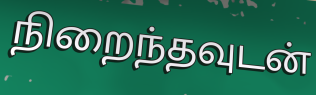
நிறைந்தவுடன்